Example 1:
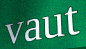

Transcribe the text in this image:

vaut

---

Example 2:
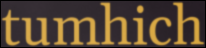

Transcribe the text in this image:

tumhich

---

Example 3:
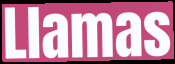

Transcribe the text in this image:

Llamas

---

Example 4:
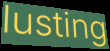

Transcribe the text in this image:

lusting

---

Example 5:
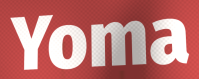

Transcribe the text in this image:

Yoma